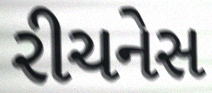
રીચનેસ